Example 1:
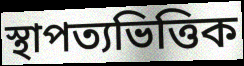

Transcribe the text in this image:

স্থাপত্যভিত্তিক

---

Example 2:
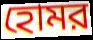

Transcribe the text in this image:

হোমর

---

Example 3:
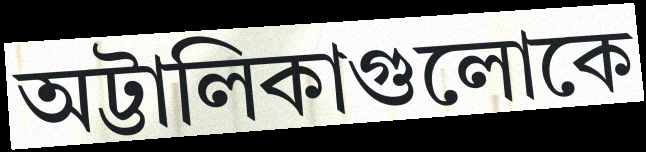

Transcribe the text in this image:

অট্টালিকাগুলোকে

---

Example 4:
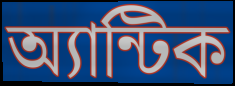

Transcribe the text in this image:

অ্যান্টিক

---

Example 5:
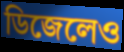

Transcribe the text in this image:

ডিজেলেও